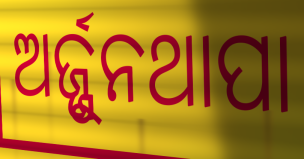
ଅର୍ଜ୍ଜୁନଥାପା